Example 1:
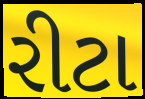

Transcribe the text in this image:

રીટા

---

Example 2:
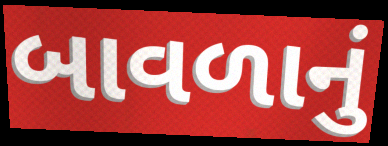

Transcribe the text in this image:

બાવળાનું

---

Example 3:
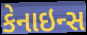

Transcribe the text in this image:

કેનાઇન્સ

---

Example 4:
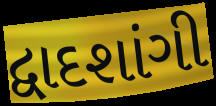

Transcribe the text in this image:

દ્વાદશાંગી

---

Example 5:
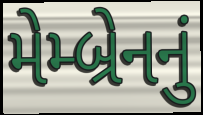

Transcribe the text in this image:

મેમ્બ્રેનનું